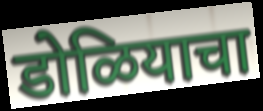
डोळियाचा